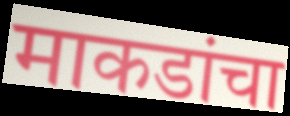
माकडांचा